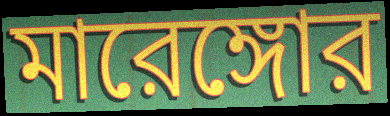
মারেঙ্গোর